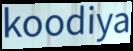
koodiya